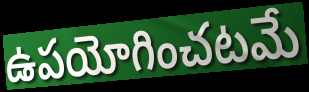
ఉపయోగించటమే